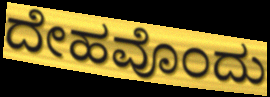
ದೇಹವೊಂದು